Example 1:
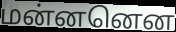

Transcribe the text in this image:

மன்னனென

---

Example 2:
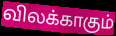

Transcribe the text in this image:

விலக்காகும்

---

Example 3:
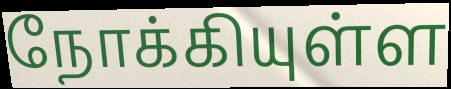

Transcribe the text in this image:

நோக்கியுள்ள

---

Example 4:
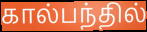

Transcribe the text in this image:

கால்பந்தில்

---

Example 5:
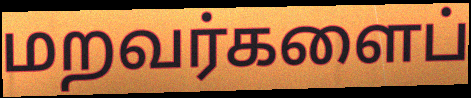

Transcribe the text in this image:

மறவர்களைப்